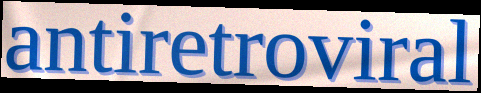
antiretroviral